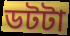
ডটটা